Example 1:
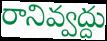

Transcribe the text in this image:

రానివ్వద్దు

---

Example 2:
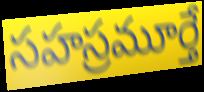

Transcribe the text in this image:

సహస్రమూర్తే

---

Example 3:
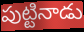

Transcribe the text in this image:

పుట్టినాడు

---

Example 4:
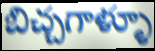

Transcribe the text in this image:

బిచ్చగాళ్ళూ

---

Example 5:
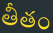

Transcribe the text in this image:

తీతం